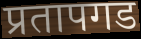
प्रतापगड